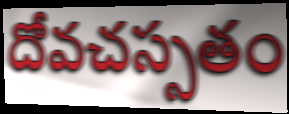
దోవచస్సతం